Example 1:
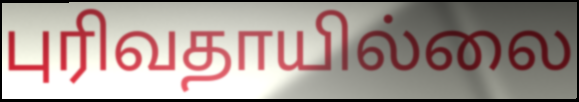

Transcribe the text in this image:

புரிவதாயில்லை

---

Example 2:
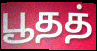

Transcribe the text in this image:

பூதத்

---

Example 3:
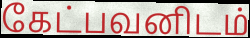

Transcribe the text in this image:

கேட்பவனிடம்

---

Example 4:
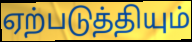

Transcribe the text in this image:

ஏற்படுத்தியும்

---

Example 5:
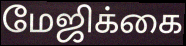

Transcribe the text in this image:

மேஜிக்கை